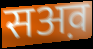
सअ़व